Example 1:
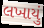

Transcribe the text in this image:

લખાયું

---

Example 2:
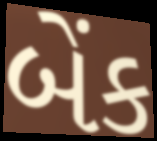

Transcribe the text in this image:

બેંક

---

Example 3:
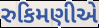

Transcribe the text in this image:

રુકિમણીએ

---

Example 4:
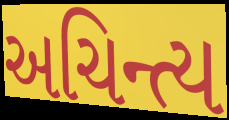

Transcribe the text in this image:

અચિન્ત્ય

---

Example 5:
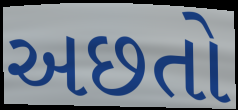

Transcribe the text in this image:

અછતો